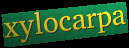
xylocarpa